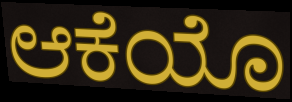
ಆಕೆಯೊ